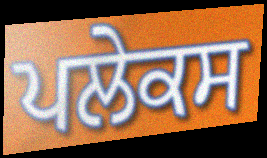
ਪਲੇਕਸ